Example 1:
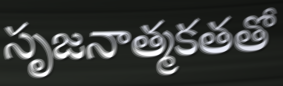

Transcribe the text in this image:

సృజనాత్మకతతో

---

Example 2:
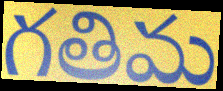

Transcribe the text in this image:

గతిమ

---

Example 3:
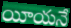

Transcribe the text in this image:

యీయనే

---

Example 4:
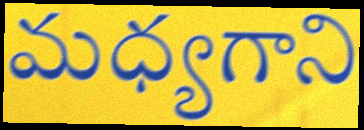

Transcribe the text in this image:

మధ్యగాని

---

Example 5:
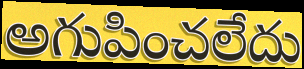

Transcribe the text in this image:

అగుపించలేదు